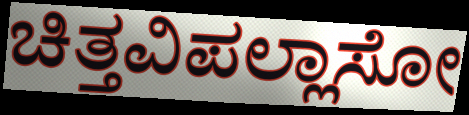
ಚಿತ್ತವಿಪಲ್ಲಾಸೋ